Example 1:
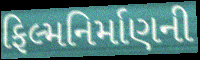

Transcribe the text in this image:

ફિલ્મનિર્માણની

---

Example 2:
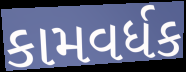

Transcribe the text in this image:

કામવર્ધક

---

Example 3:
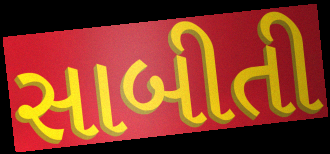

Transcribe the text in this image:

સાબીતી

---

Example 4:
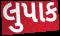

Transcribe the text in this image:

લુપાક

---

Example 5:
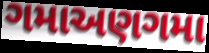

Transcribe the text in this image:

ગમાઅણગમા